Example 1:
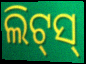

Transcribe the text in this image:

ଲିଟ୍‌ସ୍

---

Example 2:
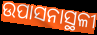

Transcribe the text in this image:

ଉପାସନାସ୍ଥଳୀ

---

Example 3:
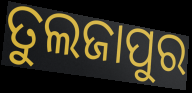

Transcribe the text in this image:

ତୁଲଜାପୁର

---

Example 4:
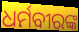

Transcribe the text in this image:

ଧର୍ମବୀରଙ୍କ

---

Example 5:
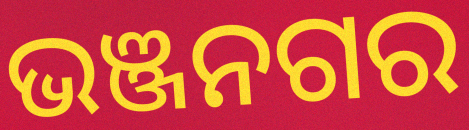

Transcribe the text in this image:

ଭଞ୍ଜନଗର